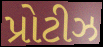
પ્રોટીઝ